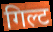
गिल्ट